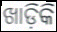
ଖାଡ଼ିକି